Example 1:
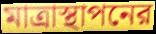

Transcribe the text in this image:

মাত্রাস্থাপনের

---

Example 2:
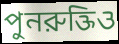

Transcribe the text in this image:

পুনরুক্তিও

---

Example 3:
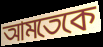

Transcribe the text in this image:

আমতেকে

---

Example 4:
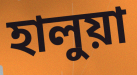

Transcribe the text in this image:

হালুয়া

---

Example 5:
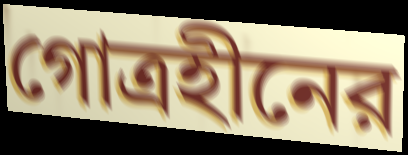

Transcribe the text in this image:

গোত্রহীনের